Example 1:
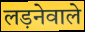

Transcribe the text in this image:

लड़नेवाले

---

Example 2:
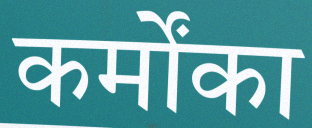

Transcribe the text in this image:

कर्मोंका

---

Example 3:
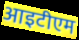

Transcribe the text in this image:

आइटीएम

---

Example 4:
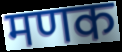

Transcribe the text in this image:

मणक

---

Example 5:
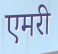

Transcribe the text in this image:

एमरी